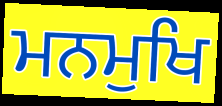
ਮਨਮੁਖਿ